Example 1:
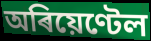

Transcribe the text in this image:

অৰিয়েণ্টেল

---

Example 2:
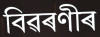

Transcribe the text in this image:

বিৱৰণীৰ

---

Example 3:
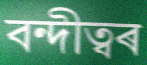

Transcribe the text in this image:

বন্দীত্বৰ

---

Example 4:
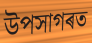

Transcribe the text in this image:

উপসাগৰত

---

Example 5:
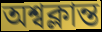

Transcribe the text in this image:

অশ্বক্লান্ত